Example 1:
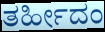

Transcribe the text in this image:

ತರ್ಹೀದಂ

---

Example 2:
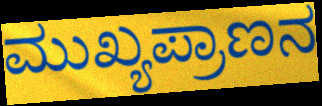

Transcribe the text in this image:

ಮುಖ್ಯಪ್ರಾಣನ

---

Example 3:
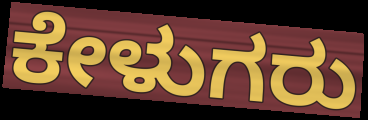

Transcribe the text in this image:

ಕೇಳುಗರು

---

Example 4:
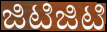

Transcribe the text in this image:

ಜಿಟಿಜಿಟಿ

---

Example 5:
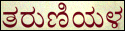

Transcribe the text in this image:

ತರುಣಿಯಳ